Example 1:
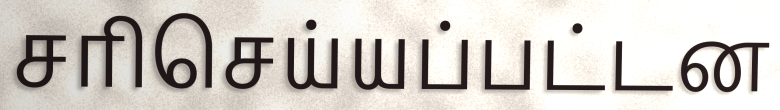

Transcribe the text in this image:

சரிசெய்யப்பட்டன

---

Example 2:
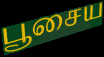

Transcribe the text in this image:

பூசைய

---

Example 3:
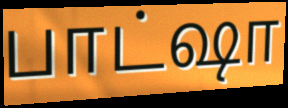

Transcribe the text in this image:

பாட்ஷா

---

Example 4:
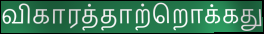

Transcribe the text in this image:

விகாரத்தாற்றொக்கது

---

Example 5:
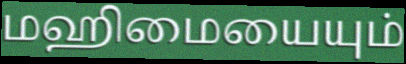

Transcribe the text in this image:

மஹிமையையும்